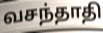
வசந்தாதி